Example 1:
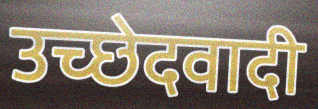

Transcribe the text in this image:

उच्छेदवादी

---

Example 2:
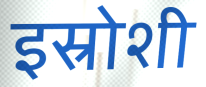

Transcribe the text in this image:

इस्रोशी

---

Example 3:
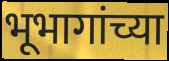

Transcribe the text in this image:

भूभागांच्या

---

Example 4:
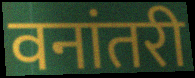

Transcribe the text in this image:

वनांतरी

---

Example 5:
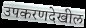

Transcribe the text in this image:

उपकरणदेखील